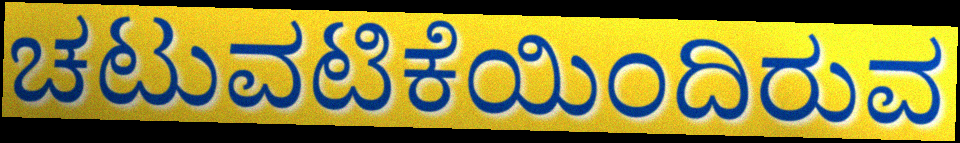
ಚಟುವಟಿಕೆಯಿಂದಿರುವ